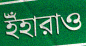
ইঁহারাও